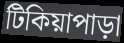
টিকিয়াপাড়া